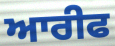
ਆਰੀਫ